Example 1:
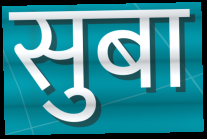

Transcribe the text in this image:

सुबा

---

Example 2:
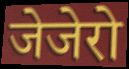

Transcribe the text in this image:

जेजेरो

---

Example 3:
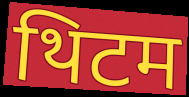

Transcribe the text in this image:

थिटम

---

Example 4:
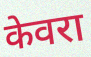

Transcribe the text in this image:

केवरा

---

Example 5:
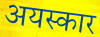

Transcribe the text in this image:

अयस्कार